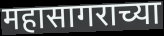
महासागराच्या